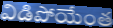
విడిపోయేంత